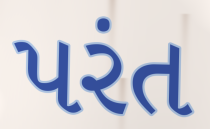
પરંત